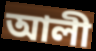
আলী